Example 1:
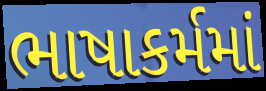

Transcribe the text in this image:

ભાષાકર્મમાં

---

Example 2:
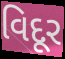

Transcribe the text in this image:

વિદૂર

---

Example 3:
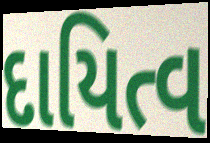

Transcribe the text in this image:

દાયિત્વ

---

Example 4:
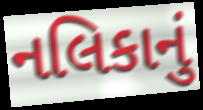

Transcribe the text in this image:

નલિકાનું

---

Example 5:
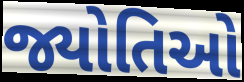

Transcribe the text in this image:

જ્યોતિઓ